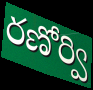
రణోర్వి